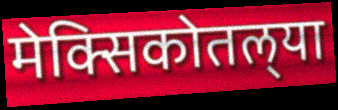
मेक्सिकोतल्या